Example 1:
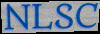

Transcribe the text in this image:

NLSC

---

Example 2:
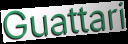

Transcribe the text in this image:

Guattari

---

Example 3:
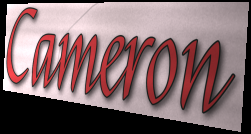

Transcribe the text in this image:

Cameron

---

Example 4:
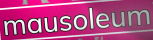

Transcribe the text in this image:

mausoleum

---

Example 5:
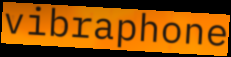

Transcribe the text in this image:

vibraphone